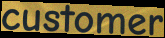
customer